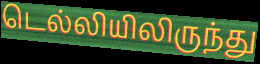
டெல்லியிலிருந்து